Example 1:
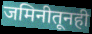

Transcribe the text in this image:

जमिनीतूनही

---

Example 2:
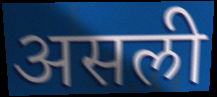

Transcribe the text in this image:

असली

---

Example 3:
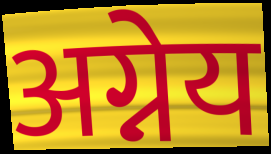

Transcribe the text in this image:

अग्नेय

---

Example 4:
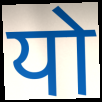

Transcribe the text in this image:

यो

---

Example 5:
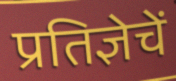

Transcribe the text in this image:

प्रतिज्ञेचें